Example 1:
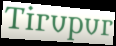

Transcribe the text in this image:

Tirupur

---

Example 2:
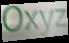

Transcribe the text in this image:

Oxyz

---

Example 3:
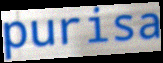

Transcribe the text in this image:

purisa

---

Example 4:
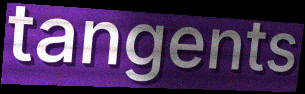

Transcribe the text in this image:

tangents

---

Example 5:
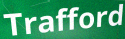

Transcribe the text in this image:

Trafford